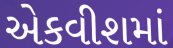
એકવીશમાં